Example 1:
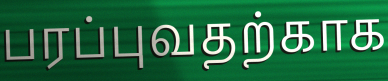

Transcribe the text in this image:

பரப்புவதற்காக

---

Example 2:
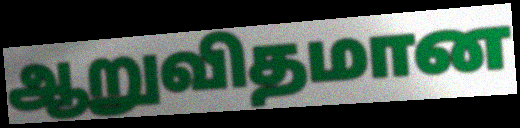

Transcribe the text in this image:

ஆறுவிதமான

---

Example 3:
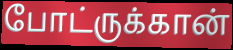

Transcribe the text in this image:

போட்ருக்கான்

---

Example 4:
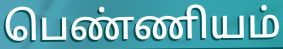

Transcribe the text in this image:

பெண்ணியம்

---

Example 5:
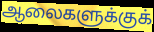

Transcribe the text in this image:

ஆலைகளுக்குக்